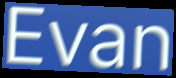
Evan